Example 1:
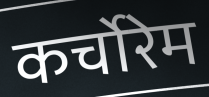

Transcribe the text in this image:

कर्चोरेम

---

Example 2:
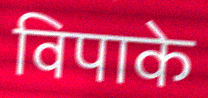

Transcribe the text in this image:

विपाके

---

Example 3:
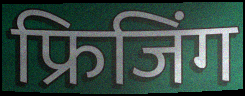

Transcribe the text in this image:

फ्रिजिंग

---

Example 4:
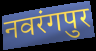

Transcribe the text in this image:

नवरंगपुर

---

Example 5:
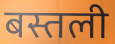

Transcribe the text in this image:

बस्तली